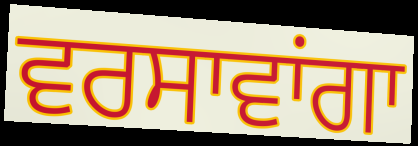
ਵਰਸਾਵਾਂਗਾ